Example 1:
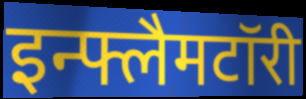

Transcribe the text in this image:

इन्फ्लैमटॉरी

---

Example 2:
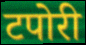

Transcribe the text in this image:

टपोरी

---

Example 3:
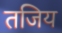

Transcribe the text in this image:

तजिय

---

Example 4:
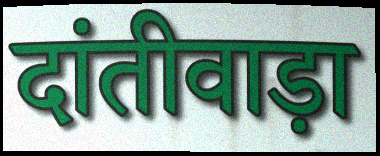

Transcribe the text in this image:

दांतीवाड़ा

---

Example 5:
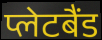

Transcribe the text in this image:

प्लेटबैंड